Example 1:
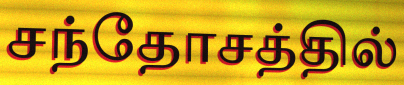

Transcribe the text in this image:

சந்தோசத்தில்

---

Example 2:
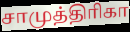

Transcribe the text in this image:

சாமுத்திரிகா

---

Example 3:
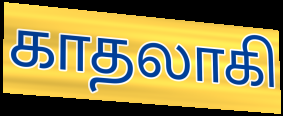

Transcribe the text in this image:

காதலாகி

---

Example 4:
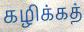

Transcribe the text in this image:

கழிக்கத்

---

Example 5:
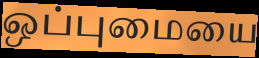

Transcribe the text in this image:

ஒப்புமையை